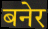
बनेर